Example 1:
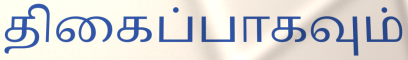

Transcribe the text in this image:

திகைப்பாகவும்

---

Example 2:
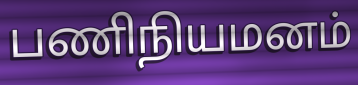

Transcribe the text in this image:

பணிநியமனம்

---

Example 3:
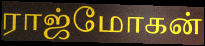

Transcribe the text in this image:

ராஜ்மோகன்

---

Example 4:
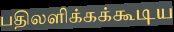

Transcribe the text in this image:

பதிலளிக்கக்கூடிய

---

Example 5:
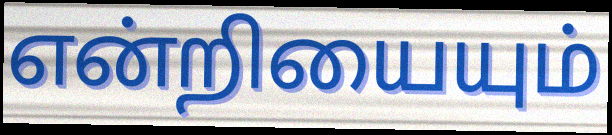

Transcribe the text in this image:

என்றியையும்